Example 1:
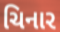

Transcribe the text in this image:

ચિનાર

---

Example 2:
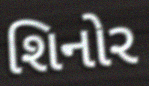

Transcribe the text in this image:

શિનોર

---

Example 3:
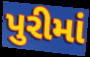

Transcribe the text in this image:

પુરીમાં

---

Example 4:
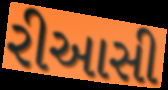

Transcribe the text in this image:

રીઆસી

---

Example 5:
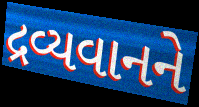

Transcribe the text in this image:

દ્રવ્યવાનને